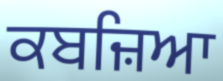
ਕਬਜ਼ਿਆ